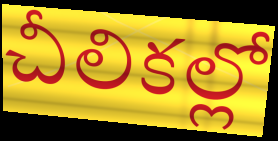
చీలికల్లో